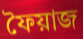
ফৈয়াজ